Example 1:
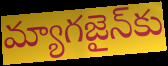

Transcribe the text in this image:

మ్యాగజైన్‌కు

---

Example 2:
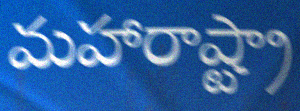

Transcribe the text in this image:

మహారాష్ట్రా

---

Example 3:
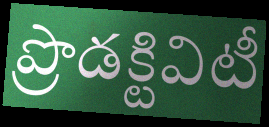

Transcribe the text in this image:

ప్రొడక్టివిటీ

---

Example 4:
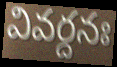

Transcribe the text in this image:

వివర్దనః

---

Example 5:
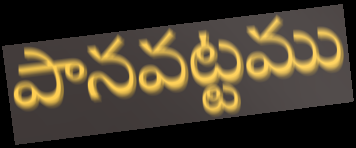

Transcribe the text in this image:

పానవట్టము